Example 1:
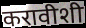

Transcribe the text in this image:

करावीशी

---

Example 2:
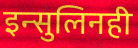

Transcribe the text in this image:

इन्सुलिनही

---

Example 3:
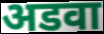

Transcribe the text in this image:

अडवा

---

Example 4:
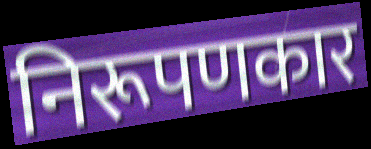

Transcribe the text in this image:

निरूपणकार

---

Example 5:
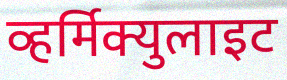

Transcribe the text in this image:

व्हर्मिक्युलाइट